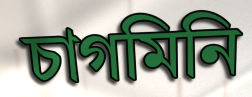
চাগমিনি